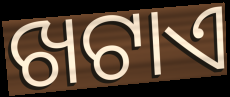
ଖଟାଏ